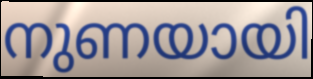
നുണയായി